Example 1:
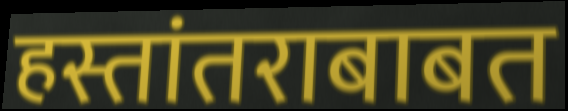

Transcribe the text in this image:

हस्तांतराबाबत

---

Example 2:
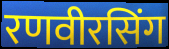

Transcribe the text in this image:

रणवीरसिंग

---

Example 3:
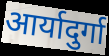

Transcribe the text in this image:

आर्यादुर्गा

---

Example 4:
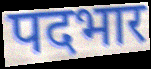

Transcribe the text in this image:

पदभार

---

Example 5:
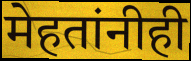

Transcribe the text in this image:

मेहतांनीही